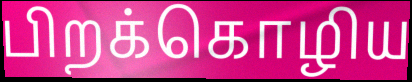
பிறக்கொழிய